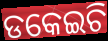
ଡକେଇଚି